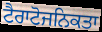
ਟੈਰਾਟੋਜਨਿਕਤਾ